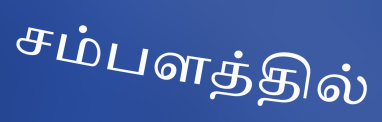
சம்பளத்தில்